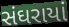
સંઘરાયાં